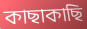
কাছাকাছি